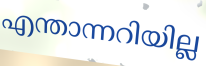
എന്താന്നറിയില്ല